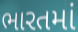
ભારતમાં